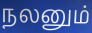
நலனும்